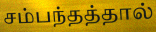
சம்பந்தத்தால்